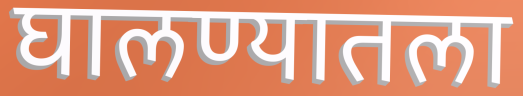
घालण्यातला